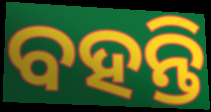
ବହନ୍ତି